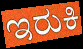
ಇರುಕಿ